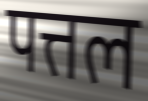
पत्तल